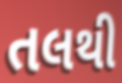
તલથી